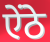
ऐंठे